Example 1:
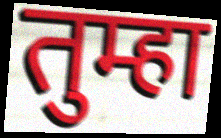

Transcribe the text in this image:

तुम्हा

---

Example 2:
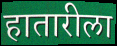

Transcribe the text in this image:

हातारीला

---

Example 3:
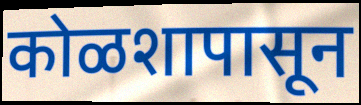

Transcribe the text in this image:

कोळशापासून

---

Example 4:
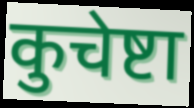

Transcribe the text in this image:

कुचेष्टा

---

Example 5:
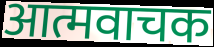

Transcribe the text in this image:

आत्मवाचक